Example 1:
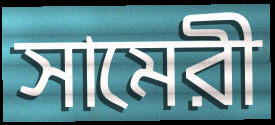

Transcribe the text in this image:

সামেরী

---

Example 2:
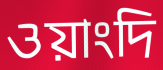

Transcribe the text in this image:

ওয়াংদি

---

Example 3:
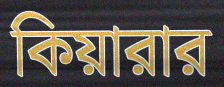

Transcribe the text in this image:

কিয়ারার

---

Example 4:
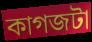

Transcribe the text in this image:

কাগজটা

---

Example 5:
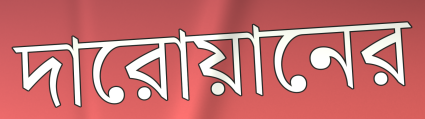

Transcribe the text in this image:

দারোয়ানের